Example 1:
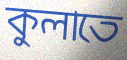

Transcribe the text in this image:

কুলাতে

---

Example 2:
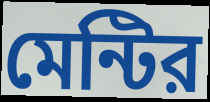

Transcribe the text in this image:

মেন্টির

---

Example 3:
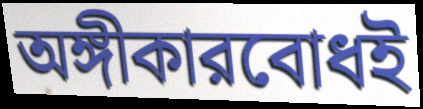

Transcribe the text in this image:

অঙ্গীকারবোধই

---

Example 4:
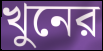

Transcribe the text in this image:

খুনের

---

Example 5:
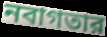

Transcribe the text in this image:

নবাগতার